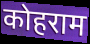
कोहराम